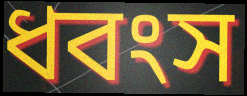
ধবংস